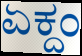
ಏಕ್ದಂ